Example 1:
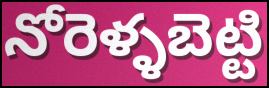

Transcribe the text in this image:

నోరెళ్ళబెట్టి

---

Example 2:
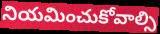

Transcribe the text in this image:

నియమించుకోవాల్సి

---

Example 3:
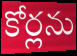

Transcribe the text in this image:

కోర్లను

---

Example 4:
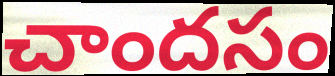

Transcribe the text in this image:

చాందసం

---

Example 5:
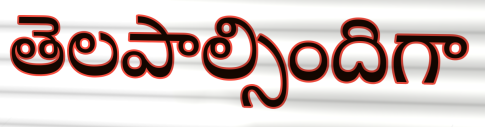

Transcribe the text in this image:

తెలపాల్సిందిగా